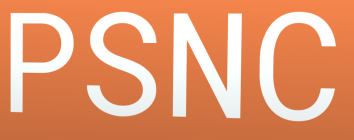
PSNC